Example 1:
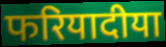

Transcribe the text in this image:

फरियादीया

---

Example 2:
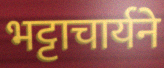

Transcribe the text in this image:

भट्टाचार्यने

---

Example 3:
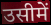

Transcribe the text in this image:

उसीमें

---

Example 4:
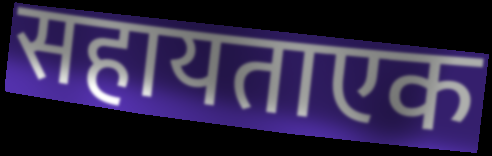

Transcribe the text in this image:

सहायताएक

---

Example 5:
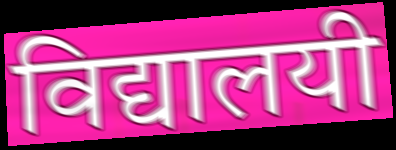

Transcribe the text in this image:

विद्यालयी